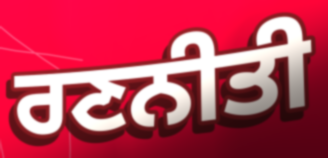
ਰਣਨੀਤੀ